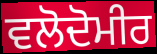
ਵਲੋਦੋਮੀਰ